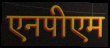
एनपीएम